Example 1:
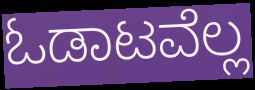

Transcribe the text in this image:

ಓಡಾಟವೆಲ್ಲ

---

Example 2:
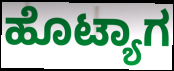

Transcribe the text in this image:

ಹೊಟ್ಯಾಗ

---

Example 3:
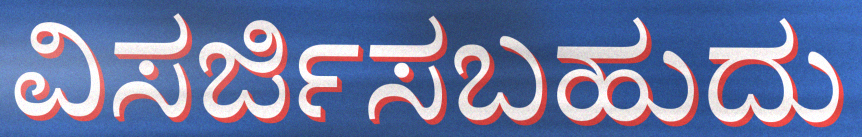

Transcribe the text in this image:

ವಿಸರ್ಜಿಸಬಹುದು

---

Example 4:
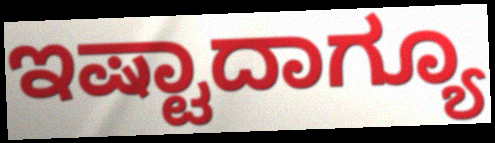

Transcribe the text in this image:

ಇಷ್ಟಾದಾಗ್ಯೂ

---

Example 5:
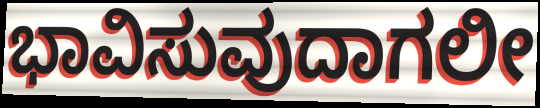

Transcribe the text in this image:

ಭಾವಿಸುವುದಾಗಲೀ